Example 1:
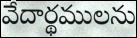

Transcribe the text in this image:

వేదార్థములను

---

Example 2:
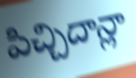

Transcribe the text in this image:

పిచ్చిదాన్లా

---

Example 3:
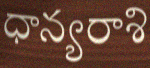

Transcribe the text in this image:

ధాన్యరాశి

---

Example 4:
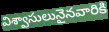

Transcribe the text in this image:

విశ్వాసులునైనవారికి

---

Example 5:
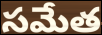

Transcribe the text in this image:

సమేత